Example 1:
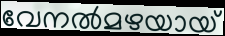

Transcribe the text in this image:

വേനൽമഴയായ്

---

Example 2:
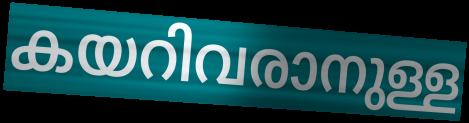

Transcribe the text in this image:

കയറിവരാനുള്ള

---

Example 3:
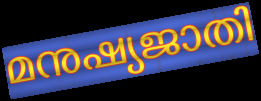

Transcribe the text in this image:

മനുഷ്യജാതി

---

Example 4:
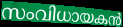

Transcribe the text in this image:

സംവിധായകൻ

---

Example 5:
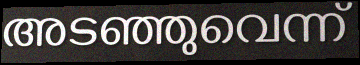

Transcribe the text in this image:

അടഞ്ഞുവെന്ന്